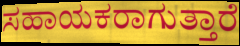
ಸಹಾಯಕರಾಗುತ್ತಾರೆ